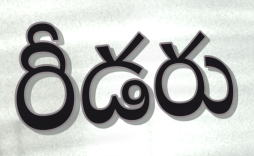
రీడరు